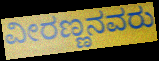
ವೀರಣ್ಣನವರು